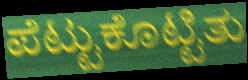
ಪೆಟ್ಟುಕೊಟ್ಟಿತು